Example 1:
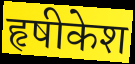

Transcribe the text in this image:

हृषीकेश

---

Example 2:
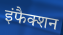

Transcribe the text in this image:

इंफैक्शन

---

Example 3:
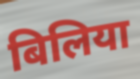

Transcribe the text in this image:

बिलिया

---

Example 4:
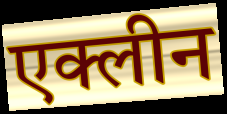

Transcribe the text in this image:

एक्लीन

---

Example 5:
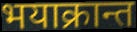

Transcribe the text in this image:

भयाक्रान्त